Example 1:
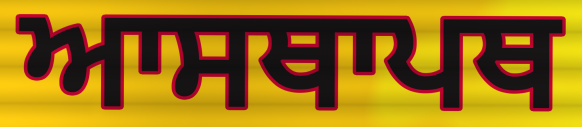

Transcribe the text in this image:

ਆਸਥਾਪਥ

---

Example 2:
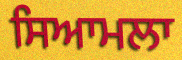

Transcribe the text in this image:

ਸਿਆਮਲਾ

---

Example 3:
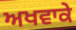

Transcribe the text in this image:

ਅਖਵਾਕੇ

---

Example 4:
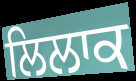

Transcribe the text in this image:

ਲਿਲਾਕ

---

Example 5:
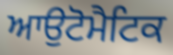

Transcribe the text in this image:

ਆਉਟੋਮੈਟਿਕ